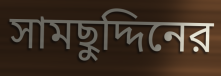
সামছুদ্দিনের